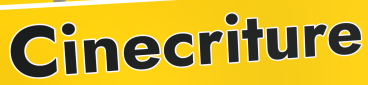
Cinecriture